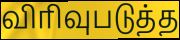
விரிவுபடுத்த